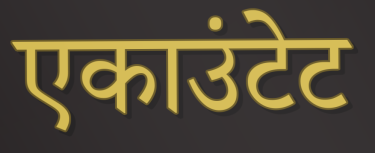
एकाउंटेट